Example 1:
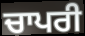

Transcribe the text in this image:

ਚਾਪਰੀ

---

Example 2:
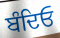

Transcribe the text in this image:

ਬੰਦਿਓ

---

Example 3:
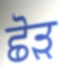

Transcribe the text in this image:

ਛੋੜ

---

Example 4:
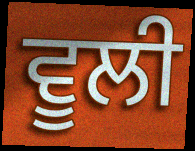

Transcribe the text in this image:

ਵੂਲੀ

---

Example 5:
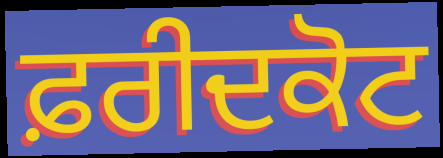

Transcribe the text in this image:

ਫ਼ਰੀਦਕੋਟ